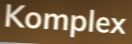
Komplex